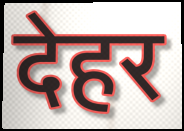
देहर